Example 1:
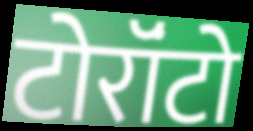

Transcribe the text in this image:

टोरॉंटो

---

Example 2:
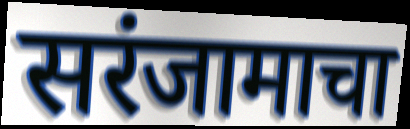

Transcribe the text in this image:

सरंजामाचा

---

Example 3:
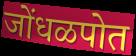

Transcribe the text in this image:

जोंधळपोत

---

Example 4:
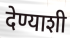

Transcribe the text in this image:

देण्याशी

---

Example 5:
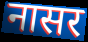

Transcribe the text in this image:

नासर